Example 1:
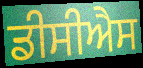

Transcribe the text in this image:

ਡੀਸੀਐਸ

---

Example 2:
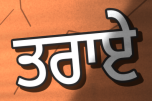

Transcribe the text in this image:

ਤਰਾਏ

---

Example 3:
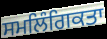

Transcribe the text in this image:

ਸਮਲਿੰਗਿਕਤਾ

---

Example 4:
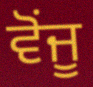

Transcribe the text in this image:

ਵੋਂਜੂ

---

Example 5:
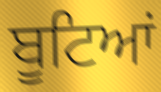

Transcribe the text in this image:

ਬੂਟਿਆਂ